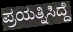
ಪ್ರಯತ್ನಿಸಿದ್ದೆ